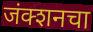
जंक्शनचा